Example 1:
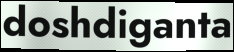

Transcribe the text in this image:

doshdiganta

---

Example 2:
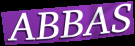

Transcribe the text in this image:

ABBAS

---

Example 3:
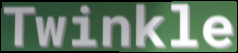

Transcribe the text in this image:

Twinkle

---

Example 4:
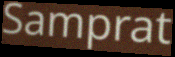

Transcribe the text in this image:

Samprat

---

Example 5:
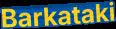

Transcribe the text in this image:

Barkataki